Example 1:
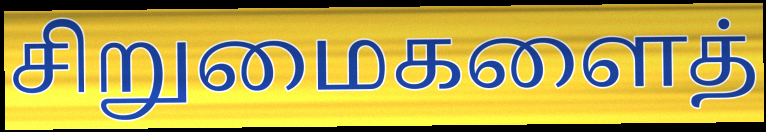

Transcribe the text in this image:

சிறுமைகளைத்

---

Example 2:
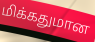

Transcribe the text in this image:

மிக்கதுமான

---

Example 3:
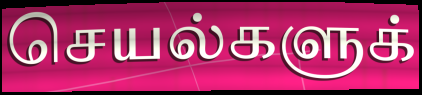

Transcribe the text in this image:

செயல்களுக்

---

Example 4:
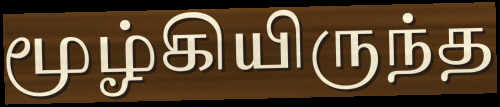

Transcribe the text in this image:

மூழ்கியிருந்த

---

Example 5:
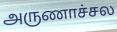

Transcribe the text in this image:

அருணாச்சல